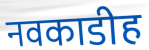
नवकाडीह